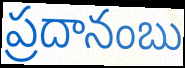
ప్రదానంబు